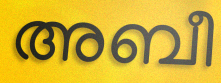
അബീ